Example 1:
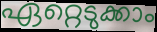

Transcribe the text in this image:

ഏറ്റെടുക്കാം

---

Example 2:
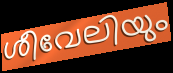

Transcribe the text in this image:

ശീവേലിയും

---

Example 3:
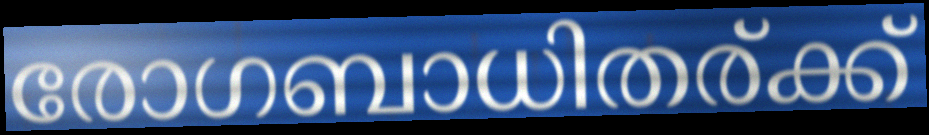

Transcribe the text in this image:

രോഗബാധിതര്ക്ക്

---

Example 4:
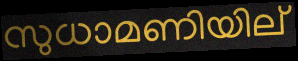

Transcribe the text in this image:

സുധാമണിയില്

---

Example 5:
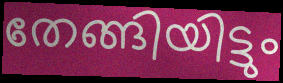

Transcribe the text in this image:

തേങ്ങിയിട്ടും